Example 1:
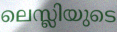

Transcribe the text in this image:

ലെസ്ലിയുടെ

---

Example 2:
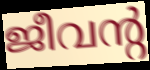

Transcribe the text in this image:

ജീവന്റ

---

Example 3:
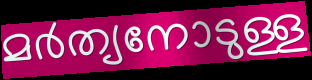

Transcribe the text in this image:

മർത്യനോടുള്ള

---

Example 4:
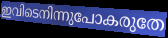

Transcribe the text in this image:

ഇവിടെനിന്നുപോകരുതേ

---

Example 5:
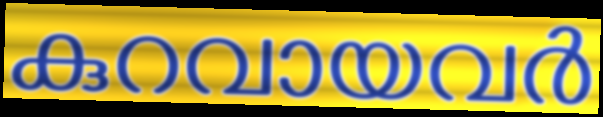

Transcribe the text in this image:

കുറവായവർ